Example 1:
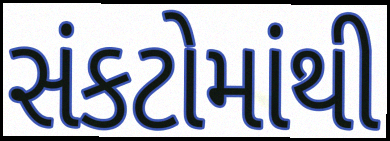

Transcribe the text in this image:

સંકટોમાંથી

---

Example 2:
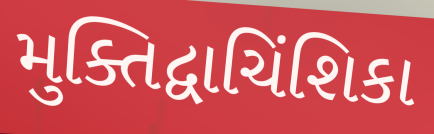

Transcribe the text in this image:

મુક્તિદ્વાચિંશિકા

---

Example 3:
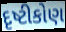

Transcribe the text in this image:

દૃષ્ટીકોણ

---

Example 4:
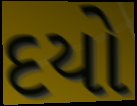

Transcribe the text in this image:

દયો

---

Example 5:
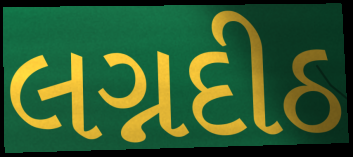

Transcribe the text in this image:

લગ્નદીઠ